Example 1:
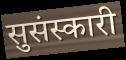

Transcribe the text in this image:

सुसंस्कारी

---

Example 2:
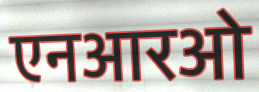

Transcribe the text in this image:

एनआरओ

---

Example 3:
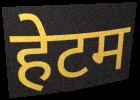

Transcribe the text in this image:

हेटम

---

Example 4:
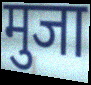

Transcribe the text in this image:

मुजा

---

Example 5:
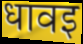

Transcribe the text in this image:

धावइ